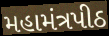
મહામંત્રપીઠ